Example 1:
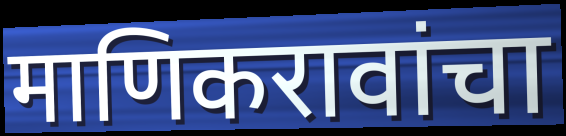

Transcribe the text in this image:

माणिकरावांचा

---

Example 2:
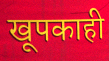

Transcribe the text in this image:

खूपकाही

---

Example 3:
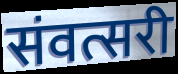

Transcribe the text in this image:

संवत्सरी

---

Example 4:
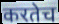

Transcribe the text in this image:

करतेच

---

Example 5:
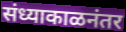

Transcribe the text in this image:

संध्याकाळनंतर